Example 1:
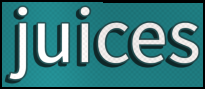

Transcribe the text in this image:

juices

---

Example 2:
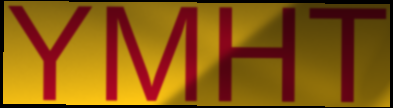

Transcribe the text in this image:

YMHT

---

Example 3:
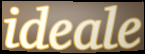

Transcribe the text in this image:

ideale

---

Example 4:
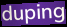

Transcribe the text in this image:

duping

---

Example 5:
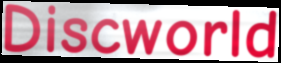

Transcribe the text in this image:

Discworld